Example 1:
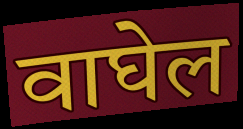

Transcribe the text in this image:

वाघेल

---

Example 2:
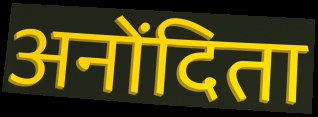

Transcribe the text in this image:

अनोंदिता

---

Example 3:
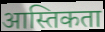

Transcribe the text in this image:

आस्तिकता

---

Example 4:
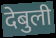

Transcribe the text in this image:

देबुली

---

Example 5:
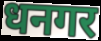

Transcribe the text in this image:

धनगर